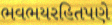
ભવભયરહિતપણે